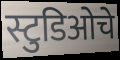
स्टुडिओचे